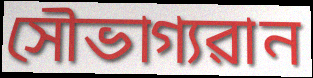
সৌভাগ্যৱান